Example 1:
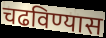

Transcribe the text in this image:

चढविण्यास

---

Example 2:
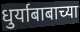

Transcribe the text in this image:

धुर्याबाबाच्या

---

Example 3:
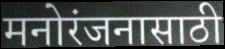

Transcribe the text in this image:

मनोरंजनासाठी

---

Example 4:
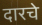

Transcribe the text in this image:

दारचे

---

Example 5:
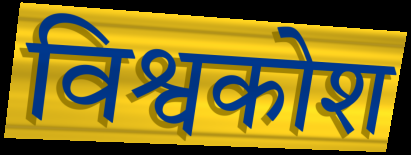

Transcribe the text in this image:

विश्वकोश